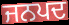
ਜਨਪਦ